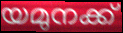
യമുനക്ക്